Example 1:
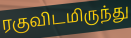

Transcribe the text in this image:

ரகுவிடமிருந்து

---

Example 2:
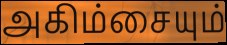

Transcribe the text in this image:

அகிம்சையும்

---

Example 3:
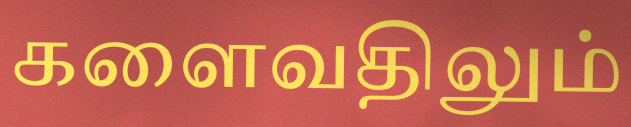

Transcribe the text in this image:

களைவதிலும்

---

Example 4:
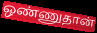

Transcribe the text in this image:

ஒண்ணுதான்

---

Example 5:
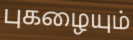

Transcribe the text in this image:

புகழையும்